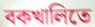
বকখালিতে